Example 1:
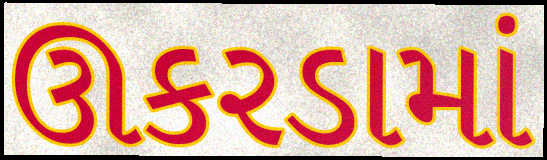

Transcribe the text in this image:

ઊકરડામાં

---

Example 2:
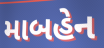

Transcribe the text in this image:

માબહેન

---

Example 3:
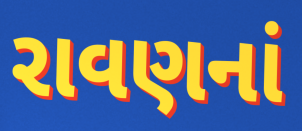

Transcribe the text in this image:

રાવણનાં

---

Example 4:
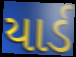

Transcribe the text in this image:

યાર્ડ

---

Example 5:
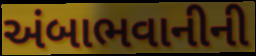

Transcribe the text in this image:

અંબાભવાનીની